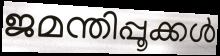
ജമന്തിപ്പൂക്കൾ